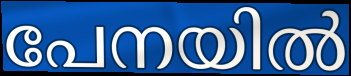
പേനയിൽ